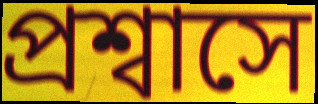
প্রশ্বাসে